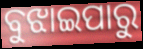
ବୁଝାଇପାରୁ